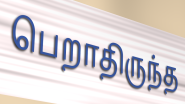
பெறாதிருந்த